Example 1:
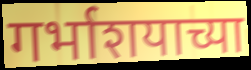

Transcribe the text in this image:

गर्भाशयाच्या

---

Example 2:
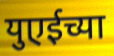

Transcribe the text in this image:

युएईच्या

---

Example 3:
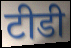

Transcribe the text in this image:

टीडी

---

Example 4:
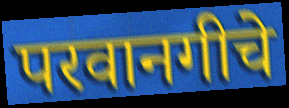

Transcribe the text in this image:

परवानगीचे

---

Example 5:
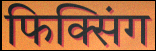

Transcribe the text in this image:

फिक्सिंग